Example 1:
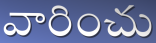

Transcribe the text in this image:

వారించు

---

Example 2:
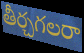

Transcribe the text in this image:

తీర్చగలరా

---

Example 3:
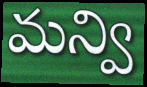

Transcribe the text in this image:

మన్వి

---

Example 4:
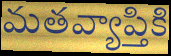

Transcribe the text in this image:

మతవ్యాప్తికి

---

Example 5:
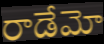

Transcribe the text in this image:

రాడేమో